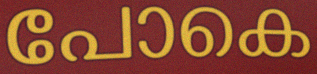
പോകെ